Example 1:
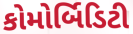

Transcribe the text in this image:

કોમોર્બિડિટી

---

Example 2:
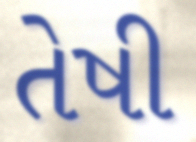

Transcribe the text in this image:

તેષી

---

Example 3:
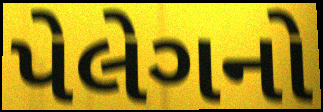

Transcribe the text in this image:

પેલેગનો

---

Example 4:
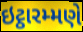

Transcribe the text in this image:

ઇટ્ઠારમ્મણે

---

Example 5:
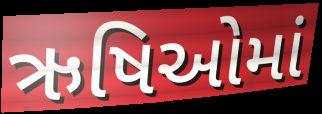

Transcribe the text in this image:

ઋષિઓમાં